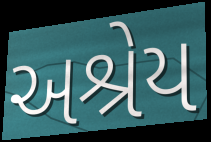
અશ્રેય